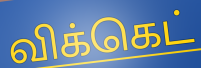
விக்கெட்